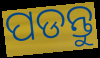
ପଡନ୍ତୁ